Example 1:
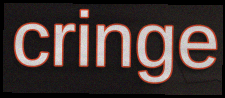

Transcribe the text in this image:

cringe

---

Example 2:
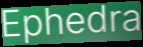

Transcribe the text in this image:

Ephedra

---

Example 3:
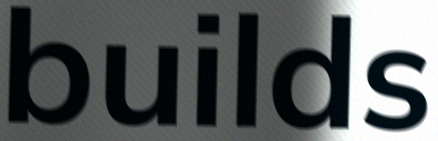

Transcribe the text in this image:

builds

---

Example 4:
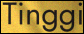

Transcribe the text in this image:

Tinggi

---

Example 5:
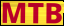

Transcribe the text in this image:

MTB